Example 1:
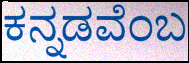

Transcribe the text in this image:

ಕನ್ನಡವೆಂಬ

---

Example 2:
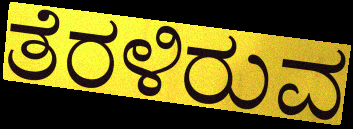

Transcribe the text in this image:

ತೆರಳಿರುವ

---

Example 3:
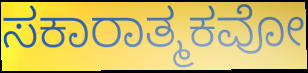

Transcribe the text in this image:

ಸಕಾರಾತ್ಮಕವೋ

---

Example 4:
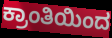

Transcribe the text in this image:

ಕ್ರಾಂತಿಯಿಂದ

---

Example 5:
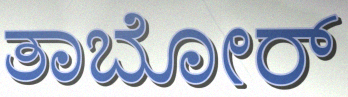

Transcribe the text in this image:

ತಾಬೋರ್